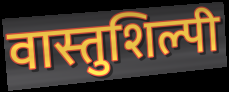
वास्तुशिल्पी